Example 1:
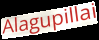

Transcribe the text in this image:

Alagupillai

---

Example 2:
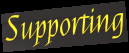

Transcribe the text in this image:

Supporting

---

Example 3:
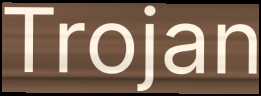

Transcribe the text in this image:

Trojan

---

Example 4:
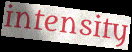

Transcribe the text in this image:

intensity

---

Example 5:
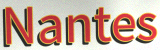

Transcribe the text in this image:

Nantes